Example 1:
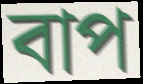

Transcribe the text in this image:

বাপ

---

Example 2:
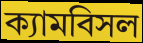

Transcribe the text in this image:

ক্যামবিসল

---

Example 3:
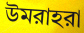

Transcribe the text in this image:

উমরাহরা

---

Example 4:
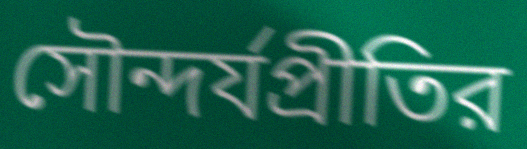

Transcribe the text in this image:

সৌন্দর্যপ্রীতির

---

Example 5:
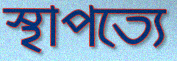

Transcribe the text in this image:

স্থাপত্যে